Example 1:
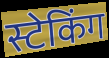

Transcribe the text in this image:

स्टेकिंग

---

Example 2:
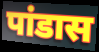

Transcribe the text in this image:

पांडास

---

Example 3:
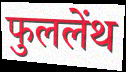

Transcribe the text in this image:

फुललेंथ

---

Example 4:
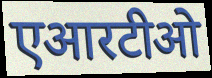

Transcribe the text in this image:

एआरटीओ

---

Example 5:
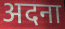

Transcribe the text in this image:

अदना